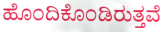
ಹೊಂದಿಕೊಂಡಿರುತ್ತವೆ